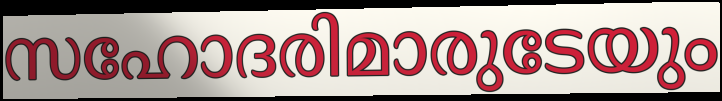
സഹോദരിമാരുടേയും